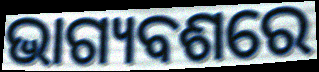
ଭାଗ୍ୟବଶରେ